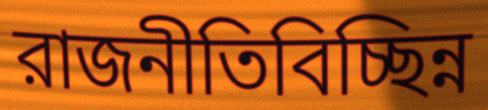
রাজনীতিবিচ্ছিন্ন